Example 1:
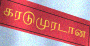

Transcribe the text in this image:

கரடுமுரடான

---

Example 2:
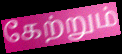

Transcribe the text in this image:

கேற்றும்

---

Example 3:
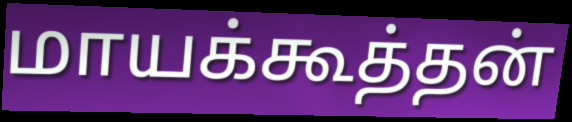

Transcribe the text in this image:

மாயக்கூத்தன்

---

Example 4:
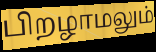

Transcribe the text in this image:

பிறழாமலும்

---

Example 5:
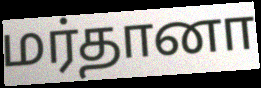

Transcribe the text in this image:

மர்தானா